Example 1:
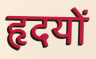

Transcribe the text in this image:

हृदयों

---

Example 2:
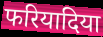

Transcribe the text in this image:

फरियादिया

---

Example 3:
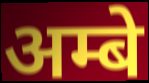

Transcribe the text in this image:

अम्बे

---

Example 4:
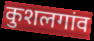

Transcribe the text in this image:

कुशलगांव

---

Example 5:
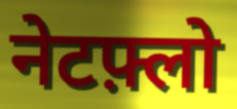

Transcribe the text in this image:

नेटफ़्लो